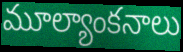
మూల్యాంకనాలు